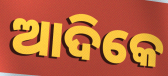
ଆଦିକେ